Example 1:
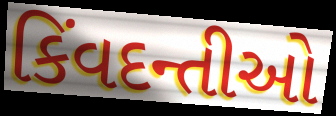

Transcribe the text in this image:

કિંવદન્તીઓ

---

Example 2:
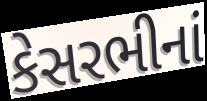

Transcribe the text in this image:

કેસરભીનાં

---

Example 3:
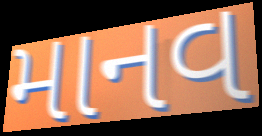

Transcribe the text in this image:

માનવ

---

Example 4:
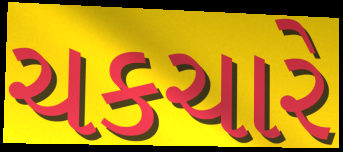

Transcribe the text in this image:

ચકચારે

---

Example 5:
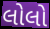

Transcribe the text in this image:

લોલો